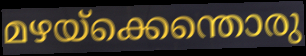
മഴയ്ക്കെന്തൊരു